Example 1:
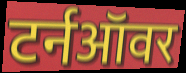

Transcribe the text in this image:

टर्नऑवर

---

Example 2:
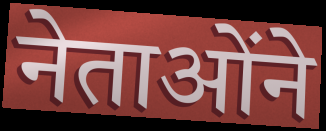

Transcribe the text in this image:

नेताओंने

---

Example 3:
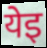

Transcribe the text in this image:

येइ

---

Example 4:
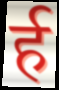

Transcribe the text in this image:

र्ह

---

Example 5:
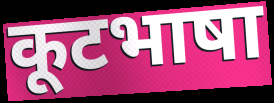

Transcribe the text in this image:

कूटभाषा